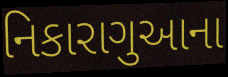
નિકારાગુઆના